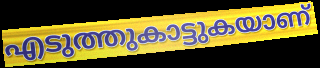
എടുത്തുകാട്ടുകയാണ്